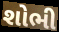
શોભી